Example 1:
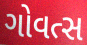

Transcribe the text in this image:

ગોવત્સ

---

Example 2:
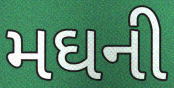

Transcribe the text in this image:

મઘની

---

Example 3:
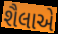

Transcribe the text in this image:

શૈલાએ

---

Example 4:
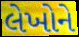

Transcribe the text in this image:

લેખોને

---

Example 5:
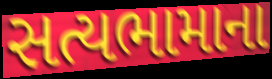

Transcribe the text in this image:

સત્યભામાના